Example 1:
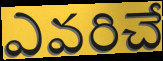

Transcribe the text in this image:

ఎవరిచే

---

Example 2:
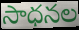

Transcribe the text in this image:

సాధనల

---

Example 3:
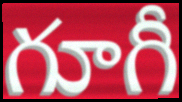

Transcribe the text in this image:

గూగీ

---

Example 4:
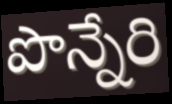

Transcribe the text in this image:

పొన్నేరి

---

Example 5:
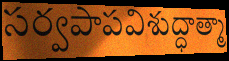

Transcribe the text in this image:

సర్వపాపవిశుద్ధాత్మా